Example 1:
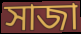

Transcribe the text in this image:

সাজা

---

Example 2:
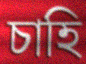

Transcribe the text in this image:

চাহি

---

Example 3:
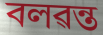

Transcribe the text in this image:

বলৱন্ত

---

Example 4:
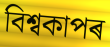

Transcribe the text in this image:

বিশ্বকাপৰ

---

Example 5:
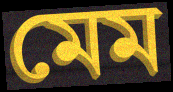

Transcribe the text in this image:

মেম